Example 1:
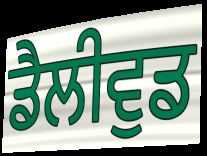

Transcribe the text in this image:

ਡੈਲੀਵੁਡ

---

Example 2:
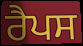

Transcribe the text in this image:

ਰੈਪਸ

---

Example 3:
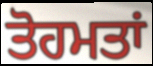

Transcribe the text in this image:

ਤੋਹਮਤਾਂ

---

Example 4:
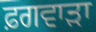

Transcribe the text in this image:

ਫ਼ਗਵਾੜਾ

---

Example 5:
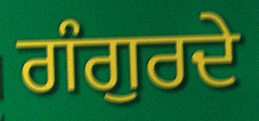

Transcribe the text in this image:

ਗੰਗੁਰਦੇ